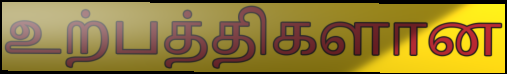
உற்பத்திகளான